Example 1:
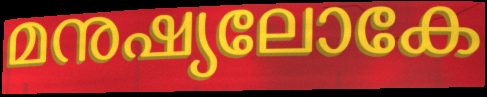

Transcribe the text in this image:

മനുഷ്യലോകേ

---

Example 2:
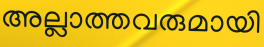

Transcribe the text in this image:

അല്ലാത്തവരുമായി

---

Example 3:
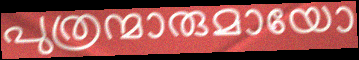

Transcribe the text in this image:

പുത്രന്മാരുമായോ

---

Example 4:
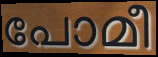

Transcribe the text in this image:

പോമീ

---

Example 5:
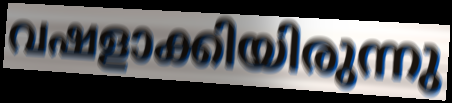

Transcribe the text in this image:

വഷളാക്കിയിരുന്നു